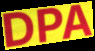
DPA